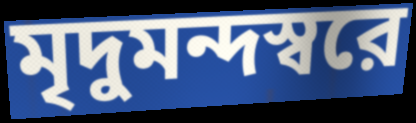
মৃদুমন্দস্বরে